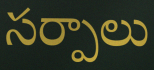
సర్పాలు